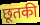
छूतकी